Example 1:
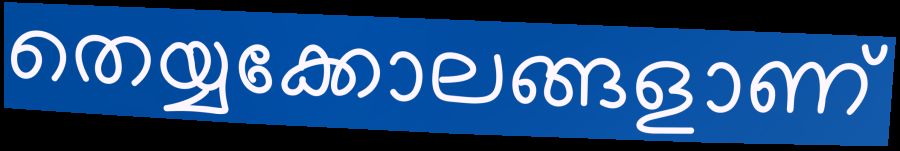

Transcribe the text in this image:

തെയ്യക്കോലങ്ങളാണ്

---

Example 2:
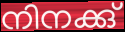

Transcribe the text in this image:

നിനക്കു്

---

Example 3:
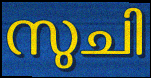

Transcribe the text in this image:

സുചി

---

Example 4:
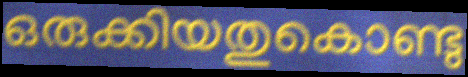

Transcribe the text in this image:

ഒരുക്കിയതുകൊണ്ടു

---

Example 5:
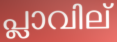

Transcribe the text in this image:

പ്ലാവില്